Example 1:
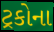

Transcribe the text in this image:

ટ્રકોના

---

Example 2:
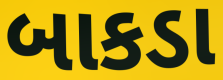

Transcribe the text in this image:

બાકડા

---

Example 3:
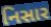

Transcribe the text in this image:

નિસાર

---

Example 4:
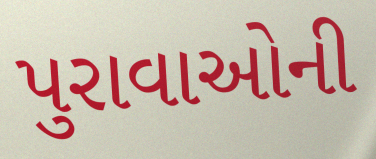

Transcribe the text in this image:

પુરાવાઓની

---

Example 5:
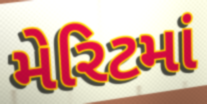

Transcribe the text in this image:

મેરિટમાં